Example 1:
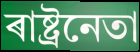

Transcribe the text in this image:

ৰাষ্ট্ৰনেতা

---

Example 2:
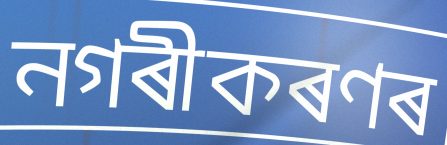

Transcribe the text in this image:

নগৰীকৰণৰ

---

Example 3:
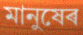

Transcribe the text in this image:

মানুষেৰ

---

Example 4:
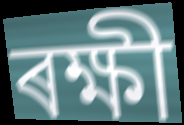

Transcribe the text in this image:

ৰক্ষী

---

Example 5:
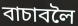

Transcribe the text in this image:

বাচাবলৈ